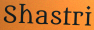
Shastri